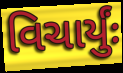
વિચાર્યુંઃ